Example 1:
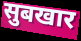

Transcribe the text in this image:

सुबखार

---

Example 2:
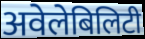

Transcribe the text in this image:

अवेलेबिलिटी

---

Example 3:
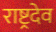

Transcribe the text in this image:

राष्ट्रदेव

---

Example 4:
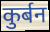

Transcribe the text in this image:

कुर्बन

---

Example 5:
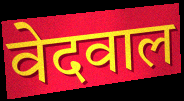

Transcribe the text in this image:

वेदवाल